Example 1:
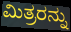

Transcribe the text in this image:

ಮಿತ್ರರನ್ನು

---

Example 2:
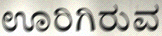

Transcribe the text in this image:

ಊರಿಗಿರುವ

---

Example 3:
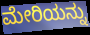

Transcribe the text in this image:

ಮೇರಿಯನ್ನು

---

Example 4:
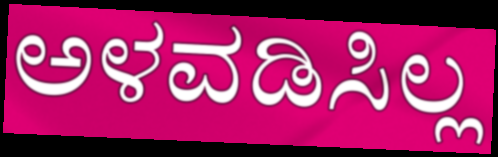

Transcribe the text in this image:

ಅಳವಡಿಸಿಲ್ಲ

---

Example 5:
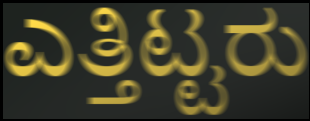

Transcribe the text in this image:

ಎತ್ತಿಟ್ಟರು